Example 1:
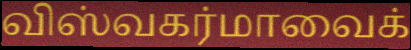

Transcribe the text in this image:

விஸ்வகர்மாவைக்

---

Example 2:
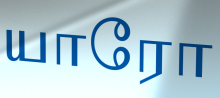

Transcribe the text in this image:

யாரோ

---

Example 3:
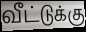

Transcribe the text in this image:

வீட்டுக்கு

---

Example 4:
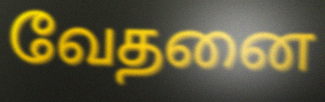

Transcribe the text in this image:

வேதனை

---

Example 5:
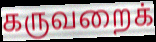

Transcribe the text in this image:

கருவறைக்